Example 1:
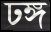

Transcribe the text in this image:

ঢঙ্গ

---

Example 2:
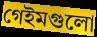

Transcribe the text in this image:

গেইমগুলো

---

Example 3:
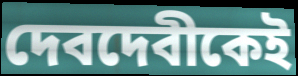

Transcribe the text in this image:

দেবদেবীকেই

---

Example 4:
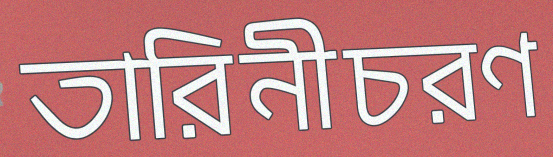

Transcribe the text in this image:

তারিনীচরণ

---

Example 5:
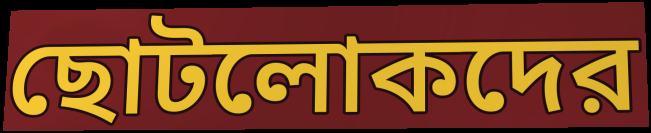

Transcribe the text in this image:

ছোটলোকদের